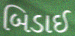
બિડાઈ